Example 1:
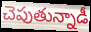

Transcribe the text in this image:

చెపుతున్నాడీ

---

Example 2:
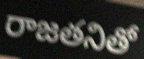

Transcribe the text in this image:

రాజతనితో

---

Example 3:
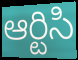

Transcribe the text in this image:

ఆర్టిసి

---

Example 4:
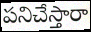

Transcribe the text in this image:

పనిచేస్తారా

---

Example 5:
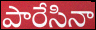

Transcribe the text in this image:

పారేసినా